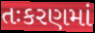
તઃકરણમાં